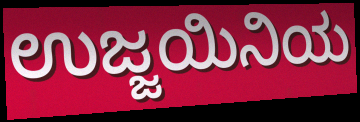
ಉಜ್ಜಯಿನಿಯ